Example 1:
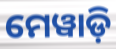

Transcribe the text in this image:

ମେୱାଡ଼ି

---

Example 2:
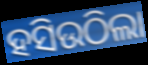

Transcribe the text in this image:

ହସିଉଠିଲା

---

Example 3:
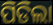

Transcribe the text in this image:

ପିଡିଲା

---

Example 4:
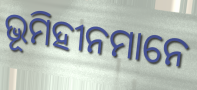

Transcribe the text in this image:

ଭୂମିହୀନମାନେ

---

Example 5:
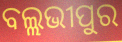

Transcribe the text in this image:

ବଲ୍ଲଭୀପୁର